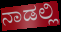
ನಾಡಲ್ಲಿ